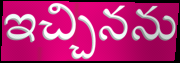
ఇచ్చినను